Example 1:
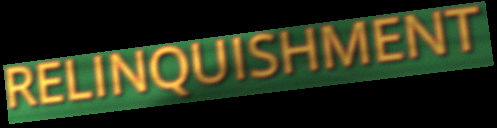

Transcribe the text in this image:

RELINQUISHMENT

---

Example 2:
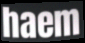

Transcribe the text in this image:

haem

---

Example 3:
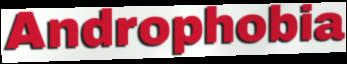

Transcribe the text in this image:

Androphobia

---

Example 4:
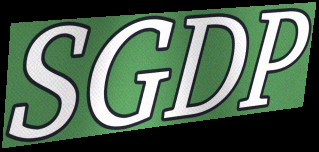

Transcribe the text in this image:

SGDP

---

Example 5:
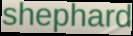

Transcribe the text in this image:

shephard